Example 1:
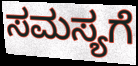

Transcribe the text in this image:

ಸಮಸ್ಯಗೆ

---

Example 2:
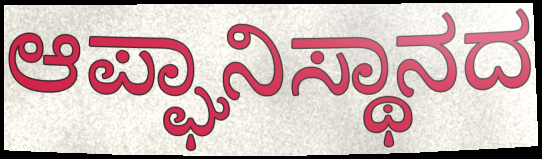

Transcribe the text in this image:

ಆಪ್ಘಾನಿಸ್ಥಾನದ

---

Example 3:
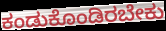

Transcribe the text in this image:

ಕಂಡುಕೊಂಡಿರಬೇಕು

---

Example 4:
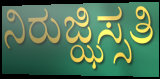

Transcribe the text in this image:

ನಿರುಜ್ಝಿಸ್ಸತಿ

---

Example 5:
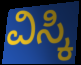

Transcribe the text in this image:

ವಿಸ್ಕಿ